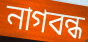
নাগবন্ধ